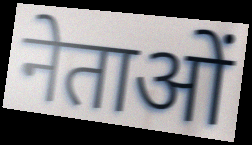
नेताओं